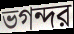
ভগন্দর